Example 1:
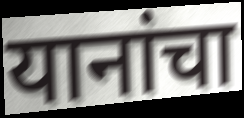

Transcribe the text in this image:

यानांचा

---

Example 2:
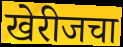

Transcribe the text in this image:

खेरीजचा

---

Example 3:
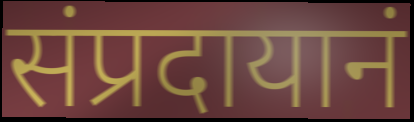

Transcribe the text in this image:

संप्रदायानं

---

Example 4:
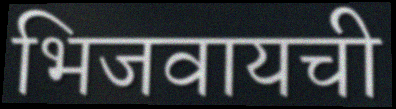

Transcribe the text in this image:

भिजवायची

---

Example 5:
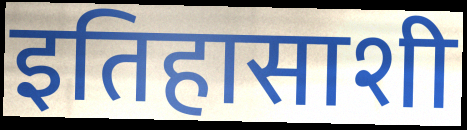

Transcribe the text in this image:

इतिहासाशी